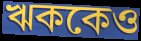
ঋককেও